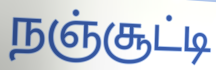
நஞ்சூட்டி